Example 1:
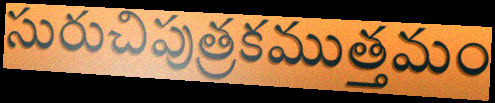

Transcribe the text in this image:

సురుచిపుత్రకముత్తమం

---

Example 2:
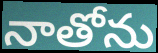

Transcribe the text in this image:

నాతోను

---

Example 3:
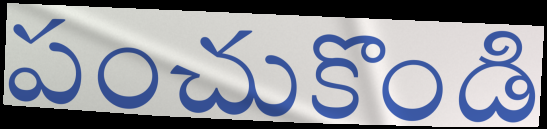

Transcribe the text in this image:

పంచుకొండి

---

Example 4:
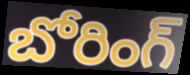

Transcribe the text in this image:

బోరింగ్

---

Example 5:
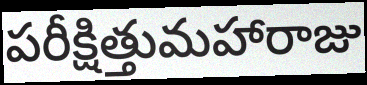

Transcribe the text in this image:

పరీక్షిత్తుమహారాజు